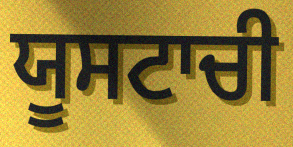
ਯੂਸਟਾਚੀ